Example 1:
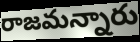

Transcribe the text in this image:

రాజమన్నారు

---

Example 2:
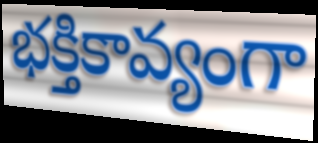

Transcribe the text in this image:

భక్తికావ్యంగా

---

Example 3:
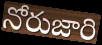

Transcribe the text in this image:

నోరుజారి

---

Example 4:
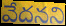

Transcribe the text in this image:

వేదనని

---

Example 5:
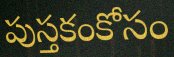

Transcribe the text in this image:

పుస్తకంకోసం